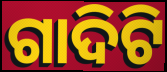
ଗାଦିଟି